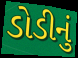
ડોડીનું